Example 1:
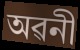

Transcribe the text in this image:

অৱনী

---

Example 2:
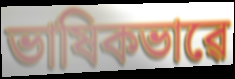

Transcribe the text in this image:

ভাষিকভাৱে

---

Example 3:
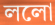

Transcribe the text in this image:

ললো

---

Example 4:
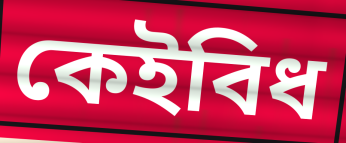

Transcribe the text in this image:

কেইবিধ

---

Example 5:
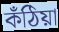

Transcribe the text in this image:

কঁঠিয়া